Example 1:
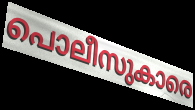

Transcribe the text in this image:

പൊലീസുകാരെ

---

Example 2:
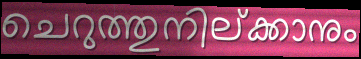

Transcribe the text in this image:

ചെറുത്തുനില്ക്കാനും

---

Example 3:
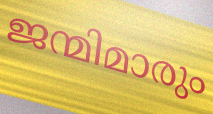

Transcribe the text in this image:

ജന്മിമാരും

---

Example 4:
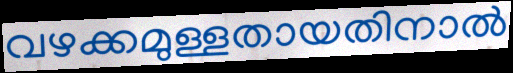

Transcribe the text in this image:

വഴക്കമുള്ളതായതിനാൽ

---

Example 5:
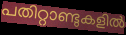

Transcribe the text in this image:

പതിറ്റാണ്ടുകളിൽ